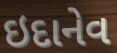
ઇદાનેવ